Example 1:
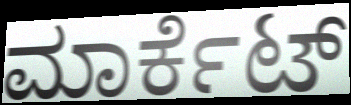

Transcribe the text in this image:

ಮಾರ್ಕೆಟ್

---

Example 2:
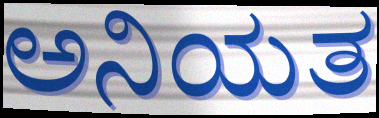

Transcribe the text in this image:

ಅನಿಯತ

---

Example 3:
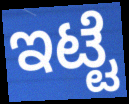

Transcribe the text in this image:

ಇಟ್ಟೆ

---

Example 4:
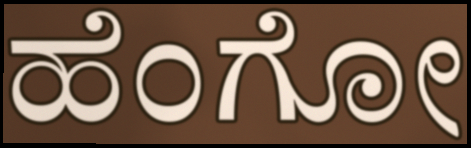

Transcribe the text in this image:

ಹೆಂಗೋ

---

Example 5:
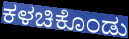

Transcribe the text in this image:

ಕಳಚಿಕೊಂಡು